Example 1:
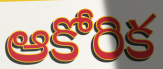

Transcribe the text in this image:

ఆకోరిక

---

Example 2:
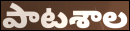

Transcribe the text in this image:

పాటశాల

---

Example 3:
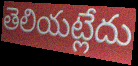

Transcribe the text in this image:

తెలియట్లేదు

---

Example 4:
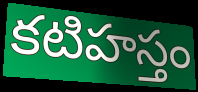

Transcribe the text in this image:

కటిహస్తం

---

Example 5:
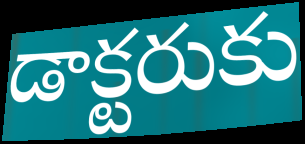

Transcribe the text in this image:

డాక్టరుకు